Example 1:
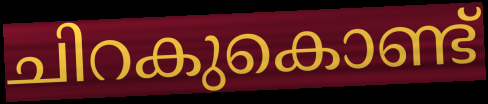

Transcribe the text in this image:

ചിറകുകൊണ്ട്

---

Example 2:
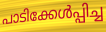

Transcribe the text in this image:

പാടിക്കേൾപ്പിച്ച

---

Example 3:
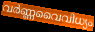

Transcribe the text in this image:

വർണ്ണവൈവിധ്യം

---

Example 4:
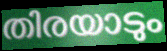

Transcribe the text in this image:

തിരയാടും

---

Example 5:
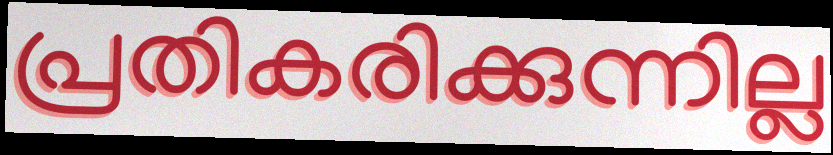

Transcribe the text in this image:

പ്രതികരിക്കുന്നില്ല